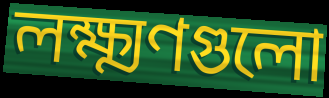
লক্ষ্মণগুলো